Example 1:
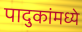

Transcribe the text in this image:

पादुकांमध्ये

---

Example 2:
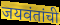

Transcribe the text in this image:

जयवंतांची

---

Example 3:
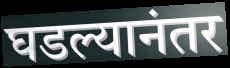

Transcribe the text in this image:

घडल्यानंतर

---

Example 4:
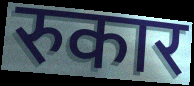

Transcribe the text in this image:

रुकार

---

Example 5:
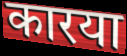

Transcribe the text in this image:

कारया